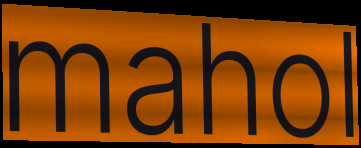
mahol